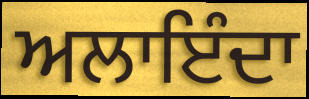
ਅਲਾਇੰਦਾ